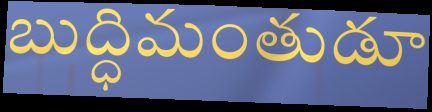
బుద్ధిమంతుడూ